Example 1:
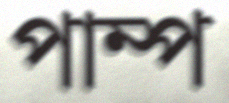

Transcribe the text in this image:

পাম্প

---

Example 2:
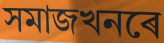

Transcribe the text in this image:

সমাজখনৰে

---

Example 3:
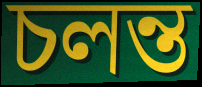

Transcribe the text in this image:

চলন্ত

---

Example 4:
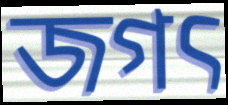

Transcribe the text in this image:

জগৎ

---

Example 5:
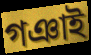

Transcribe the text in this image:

গঞাই